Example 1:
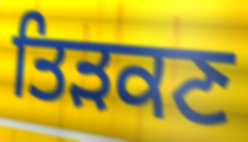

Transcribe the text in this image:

ਤਿੜਕਣ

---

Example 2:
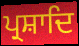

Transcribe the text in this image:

ਪ੍ਰਸ਼ਾਦਿ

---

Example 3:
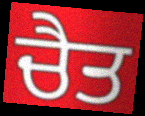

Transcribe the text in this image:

ਚੈਤ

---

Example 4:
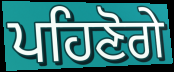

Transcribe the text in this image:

ਪਹਿਣੋਗੇ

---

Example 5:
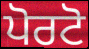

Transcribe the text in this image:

ਪੋਰਟੋ